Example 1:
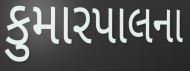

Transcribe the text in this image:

કુમારપાલના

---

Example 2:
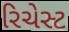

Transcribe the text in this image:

રિચેસ્ટ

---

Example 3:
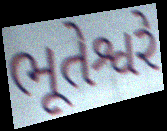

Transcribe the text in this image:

ભૂતેશ્વરે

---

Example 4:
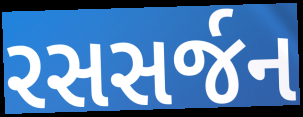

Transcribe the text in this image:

રસસર્જન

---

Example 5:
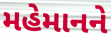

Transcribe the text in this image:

મહેમાનને